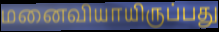
மனைவியாயிருப்பது